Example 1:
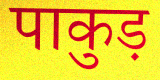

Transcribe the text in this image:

पाकुड़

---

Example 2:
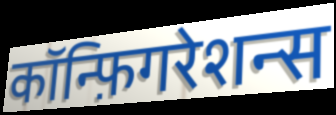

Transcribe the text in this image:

कॉन्फ़िगरेशन्स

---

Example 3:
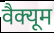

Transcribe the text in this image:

वैक्‍यूम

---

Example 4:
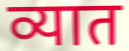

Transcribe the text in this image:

व्यात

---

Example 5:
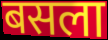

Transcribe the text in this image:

बसला